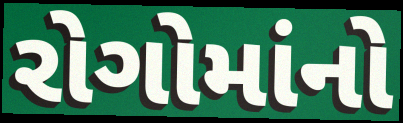
રોગોમાંનો